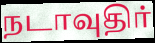
நடாவுதிர்